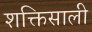
शक्तिसाली